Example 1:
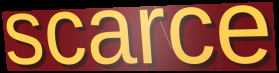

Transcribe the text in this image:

scarce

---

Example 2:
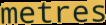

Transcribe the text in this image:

metres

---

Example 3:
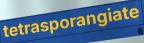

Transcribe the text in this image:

tetrasporangiate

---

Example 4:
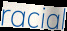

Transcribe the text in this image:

racial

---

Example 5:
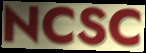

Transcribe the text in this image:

NCSC